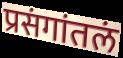
प्रसंगांतलं